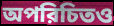
অপরিচিতও